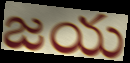
జయ